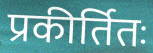
प्रकीर्तितः